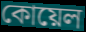
কোয়েল